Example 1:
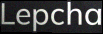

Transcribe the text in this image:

Lepcha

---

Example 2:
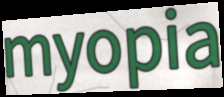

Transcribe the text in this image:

myopia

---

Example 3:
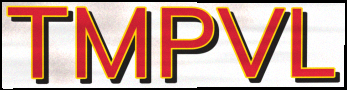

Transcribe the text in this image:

TMPVL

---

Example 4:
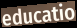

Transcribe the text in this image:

educatio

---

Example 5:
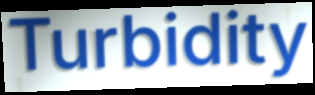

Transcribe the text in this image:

Turbidity